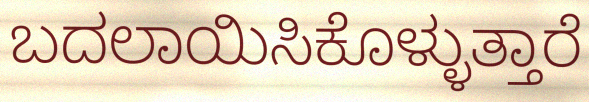
ಬದಲಾಯಿಸಿಕೊಳ್ಳುತ್ತಾರೆ